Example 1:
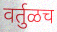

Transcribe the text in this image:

वर्तुळच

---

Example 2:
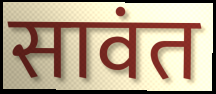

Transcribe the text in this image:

सावंत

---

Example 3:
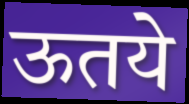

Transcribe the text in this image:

ऊतये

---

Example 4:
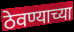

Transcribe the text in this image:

ठेवण्याच्या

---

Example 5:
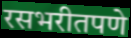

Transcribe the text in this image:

रसभरीतपणे